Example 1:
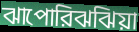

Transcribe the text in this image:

ঝাপোরিঝঝিয়া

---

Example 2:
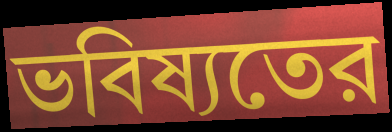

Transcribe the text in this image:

ভবিষ্যতের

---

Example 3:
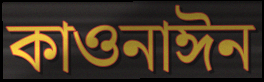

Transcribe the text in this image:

কাওনাঈন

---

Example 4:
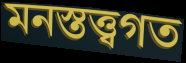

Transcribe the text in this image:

মনস্তত্ত্বগত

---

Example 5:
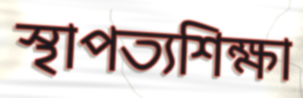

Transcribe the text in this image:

স্থাপত্যশিক্ষা